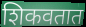
शिकवतात